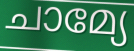
ചാമ്യേ